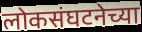
लोकसंघटनेच्या